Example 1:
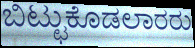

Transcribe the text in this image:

ಬಿಟ್ಟುಕೊಡಲಾರರು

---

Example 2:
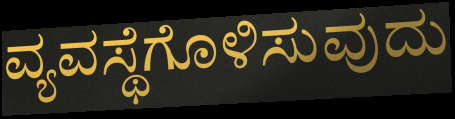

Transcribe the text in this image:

ವ್ಯವಸ್ಥೆಗೊಳಿಸುವುದು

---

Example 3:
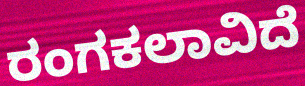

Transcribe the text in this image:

ರಂಗಕಲಾವಿದೆ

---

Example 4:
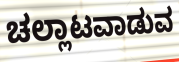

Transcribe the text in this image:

ಚಲ್ಲಾಟವಾಡುವ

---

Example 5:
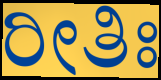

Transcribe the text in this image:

ರೀತಿಃ